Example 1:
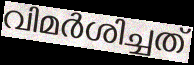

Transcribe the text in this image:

വിമർശിച്ചത്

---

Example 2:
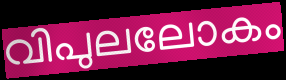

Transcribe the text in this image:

വിപുലലോകം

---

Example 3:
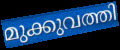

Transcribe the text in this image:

മുക്കുവത്തി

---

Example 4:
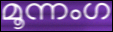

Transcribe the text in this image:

മൂന്നംഗ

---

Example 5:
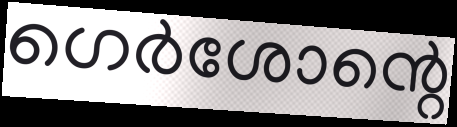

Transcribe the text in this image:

ഗെർശോന്റെ